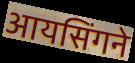
आयसिंगने